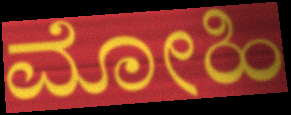
ಮೋಹಿ